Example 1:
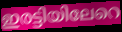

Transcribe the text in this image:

ഇരട്ടിയിലേറെ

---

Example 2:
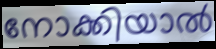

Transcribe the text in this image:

നോക്കിയാൽ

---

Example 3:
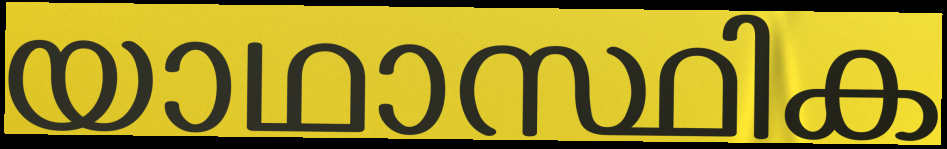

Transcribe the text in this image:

യാഥാസ്ഥിക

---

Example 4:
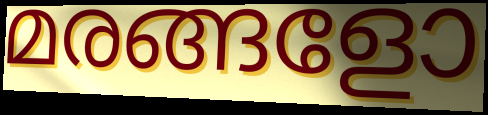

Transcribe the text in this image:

മരങ്ങളോ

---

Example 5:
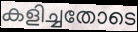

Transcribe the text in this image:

കളിച്ചതോടെ